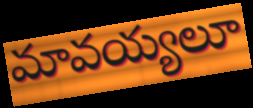
మావయ్యలూ